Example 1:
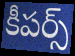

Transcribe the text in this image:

కీపర్స్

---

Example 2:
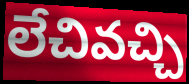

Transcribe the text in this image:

లేచివచ్చి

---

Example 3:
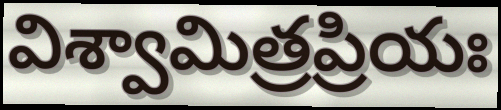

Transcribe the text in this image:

విశ్వామిత్రప్రియః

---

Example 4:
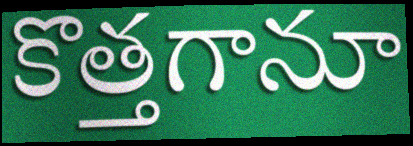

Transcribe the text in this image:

కొత్తగానూ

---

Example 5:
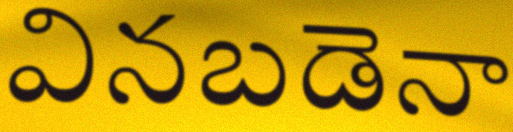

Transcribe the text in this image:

వినబడెనా